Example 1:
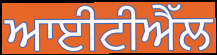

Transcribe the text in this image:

ਆਈਟੀਐੱਲ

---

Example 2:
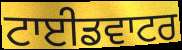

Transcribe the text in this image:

ਟਾਈਡਵਾਟਰ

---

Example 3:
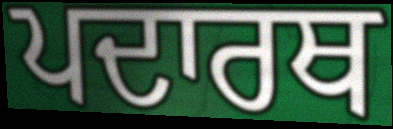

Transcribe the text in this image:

ਪਦਾਰਥ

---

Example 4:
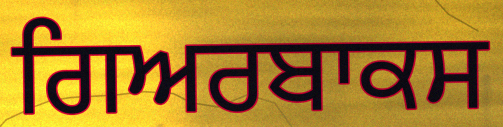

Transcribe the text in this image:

ਗਿਅਰਬਾਕਸ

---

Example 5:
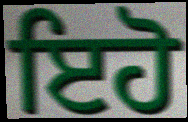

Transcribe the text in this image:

ਇਹੋ